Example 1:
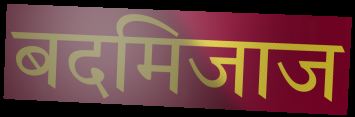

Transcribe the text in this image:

बदमिजाज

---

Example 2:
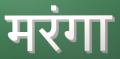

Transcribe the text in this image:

मरंगा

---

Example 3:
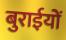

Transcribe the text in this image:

बुराईयों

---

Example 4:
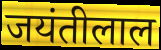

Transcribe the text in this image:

जयंतीलाल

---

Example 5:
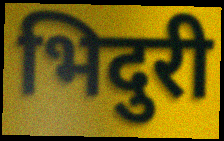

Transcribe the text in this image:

भिदुरी